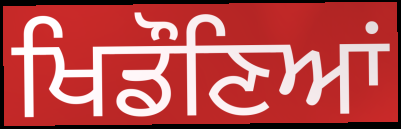
ਖਿਡੌਣਿਆਂ